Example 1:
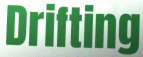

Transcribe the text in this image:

Drifting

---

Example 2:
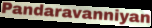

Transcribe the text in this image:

Pandaravanniyan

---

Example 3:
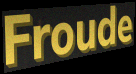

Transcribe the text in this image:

Froude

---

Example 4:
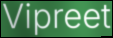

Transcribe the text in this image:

Vipreet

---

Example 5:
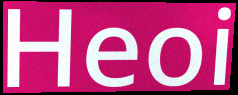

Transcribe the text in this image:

Heoi